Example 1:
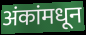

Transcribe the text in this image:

अंकांमधून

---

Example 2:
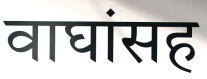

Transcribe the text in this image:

वाघांसह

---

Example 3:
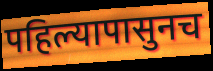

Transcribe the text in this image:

पहिल्यापासुनच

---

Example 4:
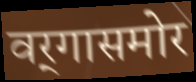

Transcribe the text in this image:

वर्गासमोर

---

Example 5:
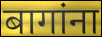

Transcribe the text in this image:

बागांना